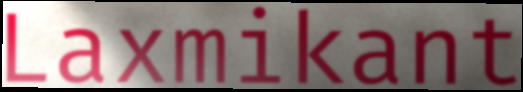
Laxmikant